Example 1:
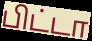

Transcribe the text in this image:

பிட்டா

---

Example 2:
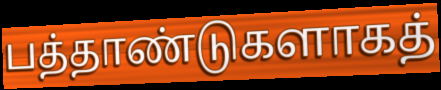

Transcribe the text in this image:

பத்தாண்டுகளாகத்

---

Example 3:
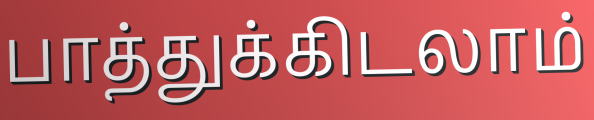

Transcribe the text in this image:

பாத்துக்கிடலாம்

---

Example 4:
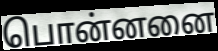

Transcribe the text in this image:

பொன்னனை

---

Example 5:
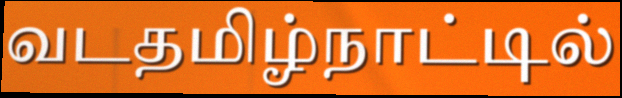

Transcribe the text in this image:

வடதமிழ்நாட்டில்